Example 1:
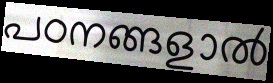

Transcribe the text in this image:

പഠനങ്ങളാൽ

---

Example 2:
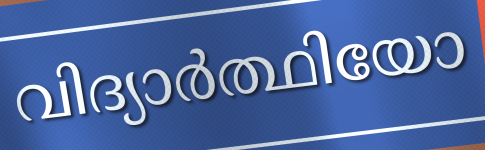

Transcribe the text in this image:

വിദ്യാർത്ഥിയോ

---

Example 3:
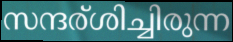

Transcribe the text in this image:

സന്ദര്ശിച്ചിരുന്ന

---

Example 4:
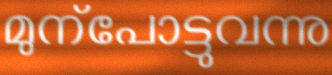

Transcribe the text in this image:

മുന്പോട്ടുവന്നു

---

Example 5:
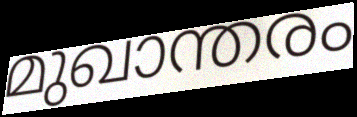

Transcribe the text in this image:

മുഖാന്തരം